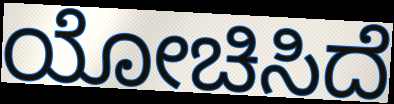
ಯೋಚಿಸಿದೆ